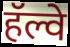
हॅल्वे